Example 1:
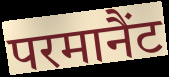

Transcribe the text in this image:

परमानैंट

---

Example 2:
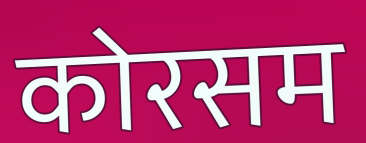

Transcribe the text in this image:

कोरसम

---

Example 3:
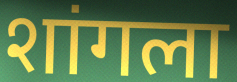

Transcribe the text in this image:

शांगला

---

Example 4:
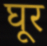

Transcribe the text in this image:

घूर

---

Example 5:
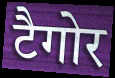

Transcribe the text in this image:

टैगोर